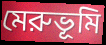
মেরুভূমি